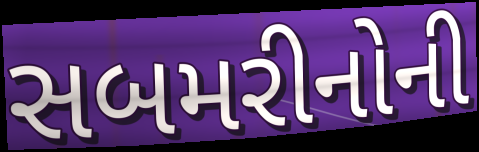
સબમરીનોની